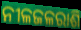
ନୀଳଜଳରାଶି